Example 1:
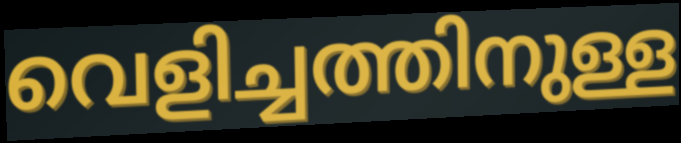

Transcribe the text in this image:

വെളിച്ചത്തിനുള്ള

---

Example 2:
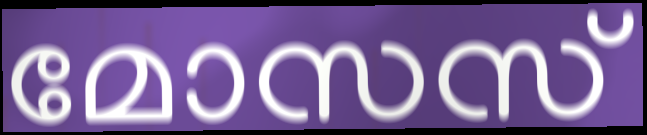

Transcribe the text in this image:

മോസസ്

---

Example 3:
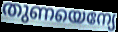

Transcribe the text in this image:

തുണയെന്യേ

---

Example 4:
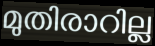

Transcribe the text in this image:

മുതിരാറില്ല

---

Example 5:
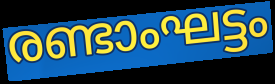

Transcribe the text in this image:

രണ്ടാംഘട്ടം